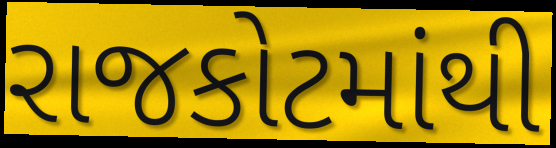
રાજકોટમાંથી